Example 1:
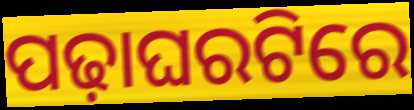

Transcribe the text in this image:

ପଢ଼ାଘରଟିରେ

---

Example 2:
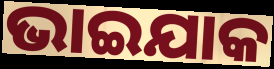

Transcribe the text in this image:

ଭାଇଯାକ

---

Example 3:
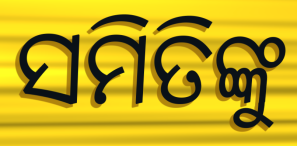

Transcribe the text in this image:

ସମିତିଙ୍କୁ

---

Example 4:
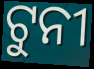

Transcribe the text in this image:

ଟୁନୀ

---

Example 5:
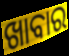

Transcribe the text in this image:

ଖାବାର